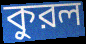
কুরল